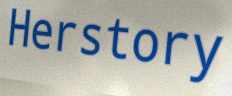
Herstory